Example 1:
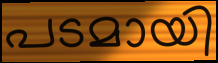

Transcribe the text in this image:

പടമായി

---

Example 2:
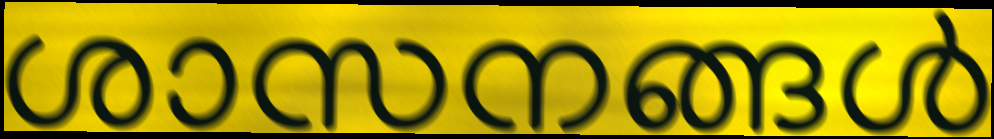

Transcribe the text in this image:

ശാസനങ്ങൾ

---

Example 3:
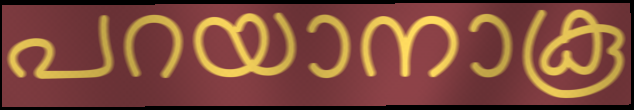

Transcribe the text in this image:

പറയാനാകൂ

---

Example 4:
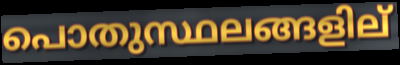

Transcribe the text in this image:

പൊതുസ്ഥലങ്ങളില്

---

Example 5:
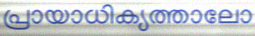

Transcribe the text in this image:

പ്രായാധിക്യത്താലോ